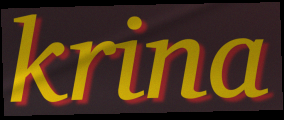
krina